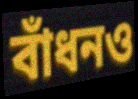
বাঁধনও